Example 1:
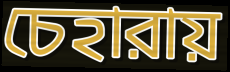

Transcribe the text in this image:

চেহারায়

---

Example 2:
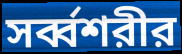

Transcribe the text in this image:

সর্ব্বশরীর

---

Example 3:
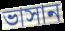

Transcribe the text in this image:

ভাসান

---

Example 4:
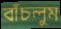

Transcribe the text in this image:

বাঁচলুম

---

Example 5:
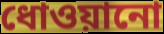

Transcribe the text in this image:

ধোওয়ানো